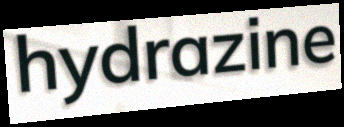
hydrazine